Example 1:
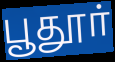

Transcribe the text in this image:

பூதூர்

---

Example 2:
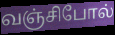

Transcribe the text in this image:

வஞ்சிபோல்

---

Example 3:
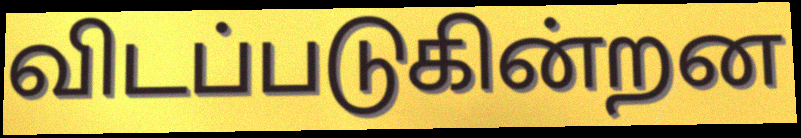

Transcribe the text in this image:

விடப்படுகின்றன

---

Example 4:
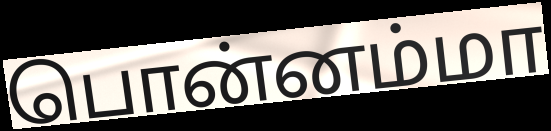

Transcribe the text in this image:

பொன்னம்மா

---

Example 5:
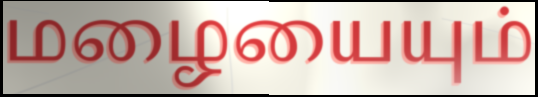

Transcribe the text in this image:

மழையையும்